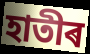
হাতীৰ